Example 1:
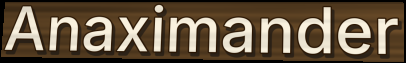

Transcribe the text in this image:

Anaximander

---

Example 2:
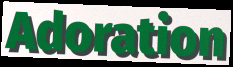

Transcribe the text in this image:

Adoration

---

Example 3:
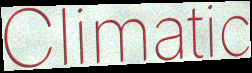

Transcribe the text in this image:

Climatic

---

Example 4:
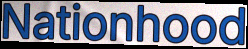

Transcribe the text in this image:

Nationhood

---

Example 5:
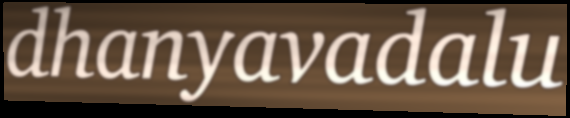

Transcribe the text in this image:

dhanyavadalu